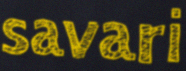
savari